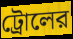
ট্রোলের